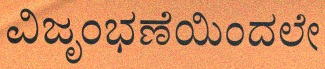
ವಿಜೃಂಭಣೆಯಿಂದಲೇ